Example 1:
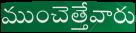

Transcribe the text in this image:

ముంచెత్తేవారు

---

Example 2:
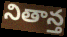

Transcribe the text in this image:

నితాన్త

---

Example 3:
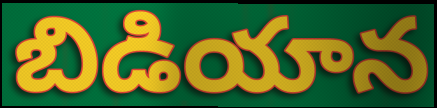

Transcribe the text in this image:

బిడియాన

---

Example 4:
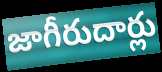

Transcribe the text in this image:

జాగీరుదార్లు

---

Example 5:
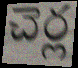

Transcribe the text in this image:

చెర్ల